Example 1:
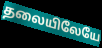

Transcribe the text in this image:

தலையிலேயே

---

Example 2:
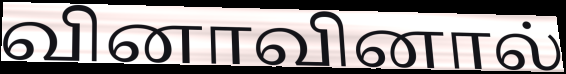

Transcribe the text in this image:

வினாவினால்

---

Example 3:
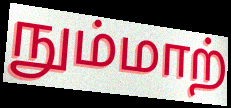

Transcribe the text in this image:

நும்மாற்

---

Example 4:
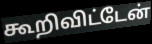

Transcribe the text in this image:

கூறிவிட்டேன்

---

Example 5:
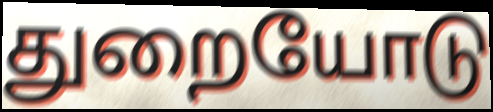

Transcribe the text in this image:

துறையோடு